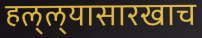
हल्ल्यासारखाच